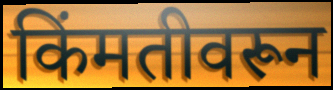
किंमतीवरून